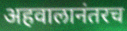
अहवालानंतरच